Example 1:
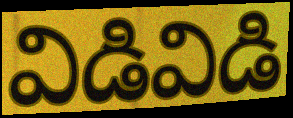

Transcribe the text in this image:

విడివిడి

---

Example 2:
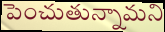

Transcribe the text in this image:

పెంచుతున్నామని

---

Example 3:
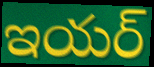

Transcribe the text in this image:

ఇయర్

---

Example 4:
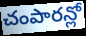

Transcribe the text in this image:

చంపారన్లో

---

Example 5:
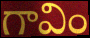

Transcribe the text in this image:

గావిం